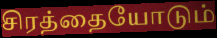
சிரத்தையோடும்